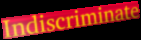
Indiscriminate